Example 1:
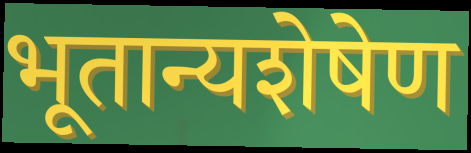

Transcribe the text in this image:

भूतान्यशेषेण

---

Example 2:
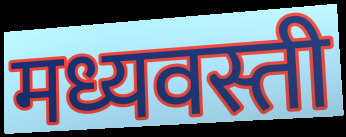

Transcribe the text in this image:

मध्यवस्ती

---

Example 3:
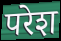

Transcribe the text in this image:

परेश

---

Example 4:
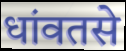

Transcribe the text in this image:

धांवतसे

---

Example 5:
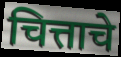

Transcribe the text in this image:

चित्ताचे